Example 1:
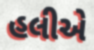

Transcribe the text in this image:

હલીએ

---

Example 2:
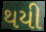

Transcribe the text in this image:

થયી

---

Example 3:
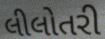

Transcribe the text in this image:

લીલોતરી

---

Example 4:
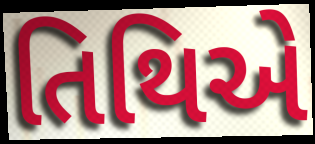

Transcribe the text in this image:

તિથિએ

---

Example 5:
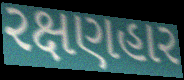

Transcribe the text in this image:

રક્ષણહાર